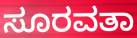
ಸೂರವತಾ